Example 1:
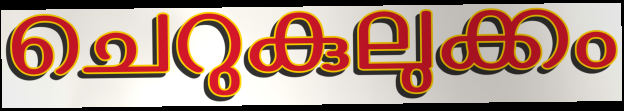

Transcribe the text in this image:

ചെറുകുലുക്കം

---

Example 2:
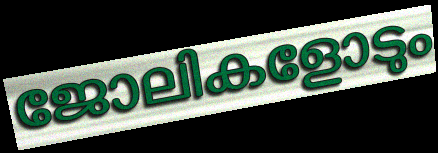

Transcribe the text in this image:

ജോലികളോടും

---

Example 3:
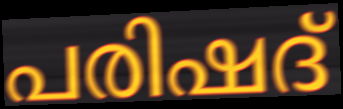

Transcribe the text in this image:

പരിഷദ്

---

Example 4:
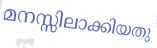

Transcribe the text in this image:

മനസ്സിലാക്കിയതു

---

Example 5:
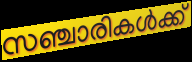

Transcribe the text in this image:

സഞ്ചാരികൾക്ക്